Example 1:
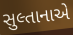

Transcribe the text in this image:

સુલ્તાનાએ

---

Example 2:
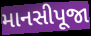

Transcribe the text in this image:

માનસીપૂજા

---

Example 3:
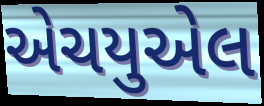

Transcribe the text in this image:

એચયુએલ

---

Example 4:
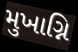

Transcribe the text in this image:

મુખાગ્નિ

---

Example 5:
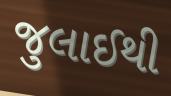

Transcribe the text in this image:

જુલાઈથી